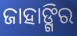
ଜାହାଙ୍ଗିର